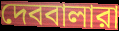
দেববালারা